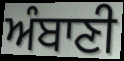
ਅੰਬਾਣੀ